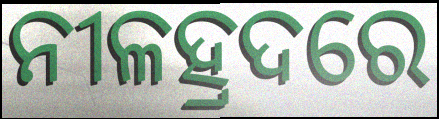
ନୀଳହ୍ରଦରେ